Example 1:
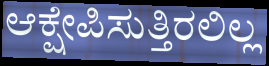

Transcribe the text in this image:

ಆಕ್ಷೇಪಿಸುತ್ತಿರಲಿಲ್ಲ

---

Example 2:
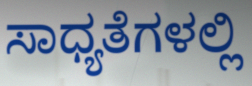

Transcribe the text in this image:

ಸಾಧ್ಯತೆಗಳಲ್ಲಿ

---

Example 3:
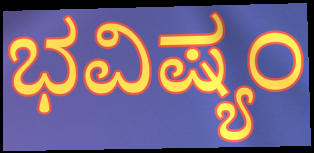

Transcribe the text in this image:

ಭವಿಷ್ಯಂ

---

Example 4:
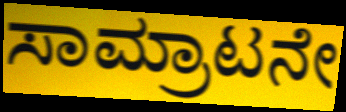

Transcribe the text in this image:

ಸಾಮ್ರಾಟನೇ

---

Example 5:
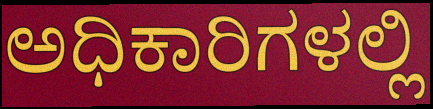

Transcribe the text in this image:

ಅಧಿಕಾರಿಗಳಲ್ಲಿ